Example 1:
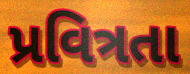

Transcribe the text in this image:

પ્રવિત્રતા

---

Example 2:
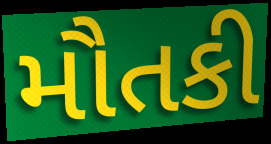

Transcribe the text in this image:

મૌતકી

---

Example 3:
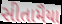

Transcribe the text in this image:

સીતામૈયા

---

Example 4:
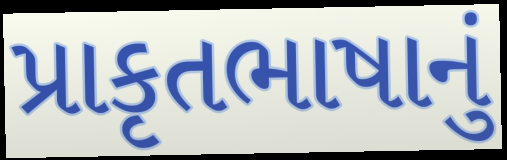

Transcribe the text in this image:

પ્રાકૃતભાષાનું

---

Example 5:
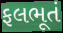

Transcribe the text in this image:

ફલભૂતં